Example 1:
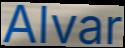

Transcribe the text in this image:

Alvar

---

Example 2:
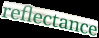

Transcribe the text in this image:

reflectance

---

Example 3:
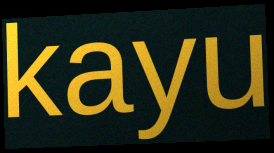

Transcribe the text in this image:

kayu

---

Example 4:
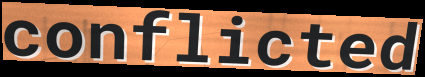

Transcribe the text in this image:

conflicted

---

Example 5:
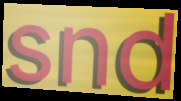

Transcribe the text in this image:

snd